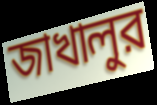
জাখালুর